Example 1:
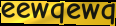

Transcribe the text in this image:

eewqewq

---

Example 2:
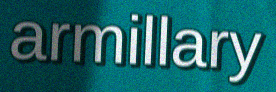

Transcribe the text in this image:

armillary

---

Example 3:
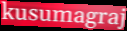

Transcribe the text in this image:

kusumagraj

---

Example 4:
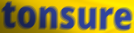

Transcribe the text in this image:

tonsure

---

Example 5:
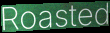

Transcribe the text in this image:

Roasted